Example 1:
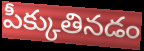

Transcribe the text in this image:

పీక్కుతినడం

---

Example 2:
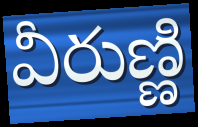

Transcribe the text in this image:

వీరుణ్ణి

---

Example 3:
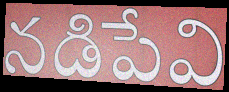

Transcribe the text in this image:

నడిపేవి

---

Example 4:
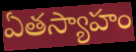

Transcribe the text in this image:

ఏతస్యాహం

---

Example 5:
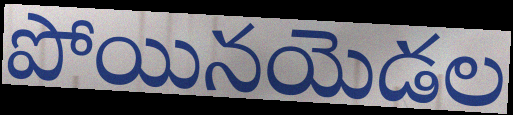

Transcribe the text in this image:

పోయినయెడల